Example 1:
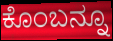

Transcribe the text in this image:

ಕೊಂಬನ್ನೂ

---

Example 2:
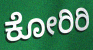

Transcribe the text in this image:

ಕೋರಿರಿ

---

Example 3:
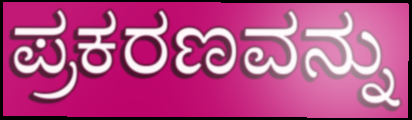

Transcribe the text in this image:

ಪ್ರಕರಣವನ್ನು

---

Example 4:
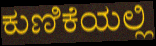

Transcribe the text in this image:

ಕುಣಿಕೆಯಲ್ಲಿ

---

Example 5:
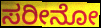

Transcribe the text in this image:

ಸರೀನೋ